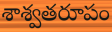
శాశ్వతరూపం